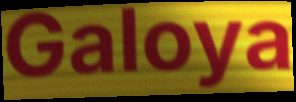
Galoya